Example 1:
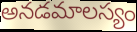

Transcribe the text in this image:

అనడమాలస్యం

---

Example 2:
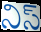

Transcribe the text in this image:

నిస్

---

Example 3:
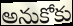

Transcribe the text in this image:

అనుకోకు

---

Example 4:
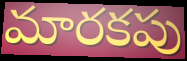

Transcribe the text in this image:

మారకపు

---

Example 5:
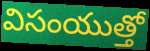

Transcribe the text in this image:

విసంయుత్తో